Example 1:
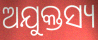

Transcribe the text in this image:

ଅଯୁକ୍ତସ୍ୟ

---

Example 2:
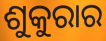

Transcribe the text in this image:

ଶୁକୁରାର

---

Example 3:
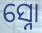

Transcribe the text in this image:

ସ୍ନୋ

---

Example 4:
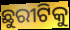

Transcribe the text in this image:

ଛୁରୀଟିକୁ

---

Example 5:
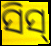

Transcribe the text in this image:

ସିସ୍